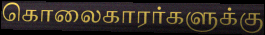
கொலைகாரர்களுக்கு